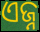
ଏଜ୍ନ